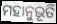
ମହାନୁଭୂତି